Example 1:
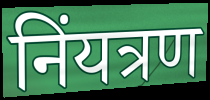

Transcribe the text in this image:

निंयत्रण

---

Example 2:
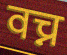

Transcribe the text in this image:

वच्न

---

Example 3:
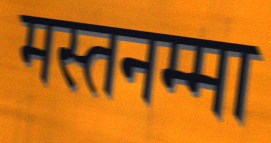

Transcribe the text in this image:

मस्तनम्मा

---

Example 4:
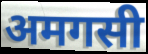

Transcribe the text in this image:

अमगसी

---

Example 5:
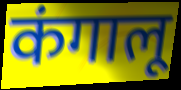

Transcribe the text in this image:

कंगालू